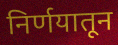
निर्णयातून